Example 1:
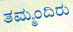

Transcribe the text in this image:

ತಮ್ಮಂದಿರು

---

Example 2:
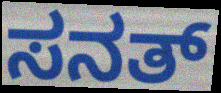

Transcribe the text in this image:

ಸನತ್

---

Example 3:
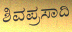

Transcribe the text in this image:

ಶಿವಪ್ರಸಾದಿ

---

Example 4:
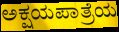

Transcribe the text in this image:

ಅಕ್ಷಯಪಾತ್ರೆಯ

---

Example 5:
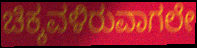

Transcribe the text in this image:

ಚಿಕ್ಕವಳಿರುವಾಗಲೇ